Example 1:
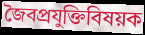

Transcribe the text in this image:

জৈবপ্রযুক্তিবিষয়ক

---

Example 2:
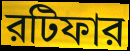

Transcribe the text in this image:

রটিফার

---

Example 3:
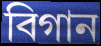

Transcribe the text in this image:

বিগান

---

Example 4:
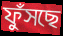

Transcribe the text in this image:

ফুঁসছে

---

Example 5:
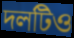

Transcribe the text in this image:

দলটিও